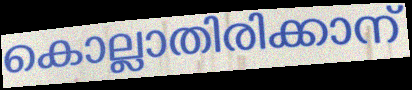
കൊല്ലാതിരിക്കാന്